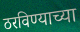
ठरविण्याच्या